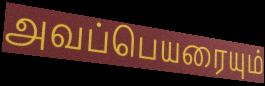
அவப்பெயரையும்